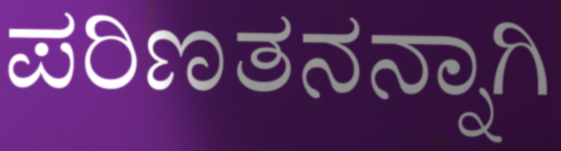
ಪರಿಣತನನ್ನಾಗಿ